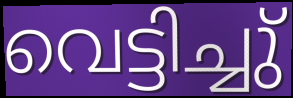
വെട്ടിച്ചു്